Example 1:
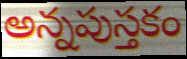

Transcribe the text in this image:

అన్నపుస్తకం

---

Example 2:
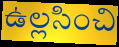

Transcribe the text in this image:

ఉల్లసించి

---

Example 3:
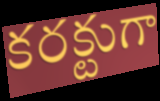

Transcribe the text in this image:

కరక్టుగా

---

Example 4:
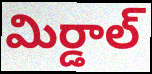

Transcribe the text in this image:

మిర్డాల్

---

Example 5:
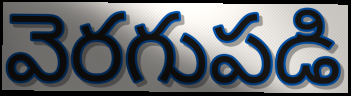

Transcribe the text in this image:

వెరగుపడి